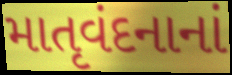
માતૃવંદનાનાં